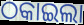
ଠକାଇଲା